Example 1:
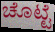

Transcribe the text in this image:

ಚೊಟ್ಟೆ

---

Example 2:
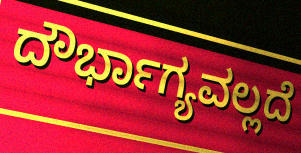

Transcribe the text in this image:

ದೌರ್ಭಾಗ್ಯವಲ್ಲದೆ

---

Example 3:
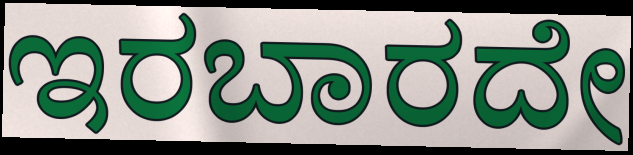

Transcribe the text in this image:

ಇರಬಾರದೇ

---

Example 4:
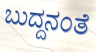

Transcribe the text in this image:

ಬುದ್ದನಂತೆ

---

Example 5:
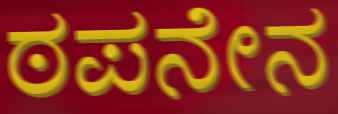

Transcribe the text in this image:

ಠಪನೇನ